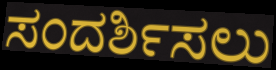
ಸಂದರ್ಶಿಸಲು